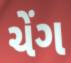
ચેંગ